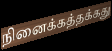
நினைக்கத்தக்கது